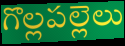
గొల్లపల్లెలు